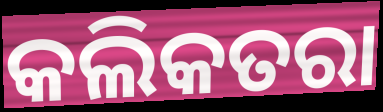
କଲିକତରା